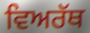
ਵਿਅਰੱਥ